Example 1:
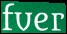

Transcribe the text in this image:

fuer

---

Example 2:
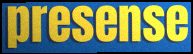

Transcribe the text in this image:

presense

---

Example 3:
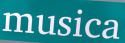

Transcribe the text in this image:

musica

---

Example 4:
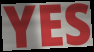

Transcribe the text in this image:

YES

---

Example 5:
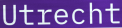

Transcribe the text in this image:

Utrecht